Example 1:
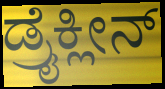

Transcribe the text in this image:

ಡ್ರೈಕ್ಲೀನ್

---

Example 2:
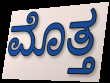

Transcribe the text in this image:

ಮೊತ್ತ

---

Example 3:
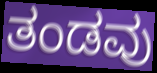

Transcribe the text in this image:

ತಂಡವು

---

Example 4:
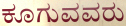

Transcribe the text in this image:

ಕೂಗುವವರು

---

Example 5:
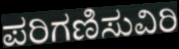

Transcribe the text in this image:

ಪರಿಗಣಿಸುವಿರಿ